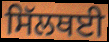
ਸਿੱਲਥਈ